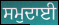
ਸਮੁਦਾਈ